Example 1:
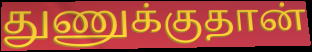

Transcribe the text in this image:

துணுக்குதான்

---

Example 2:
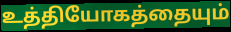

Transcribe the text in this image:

உத்தியோகத்தையும்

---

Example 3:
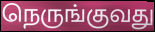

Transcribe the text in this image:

நெருங்குவது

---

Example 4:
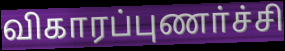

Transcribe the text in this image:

விகாரப்புணர்ச்சி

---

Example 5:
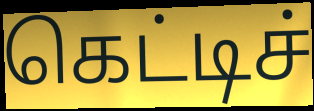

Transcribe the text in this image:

கெட்டிச்